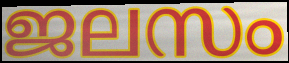
ജലസം